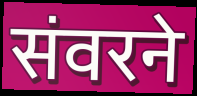
संवरने